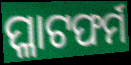
ପ୍ଳାଟଫର୍ମ